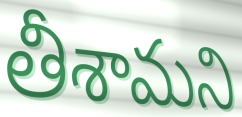
తీశామని